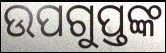
ଉପଗୁପ୍ତଙ୍କ